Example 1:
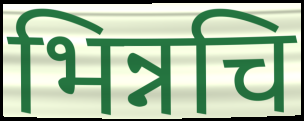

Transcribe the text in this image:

भिन्नचि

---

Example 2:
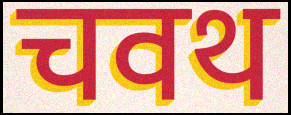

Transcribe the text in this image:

चवथ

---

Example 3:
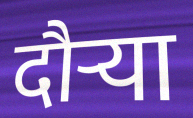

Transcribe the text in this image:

दौऱ्या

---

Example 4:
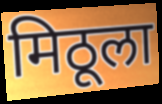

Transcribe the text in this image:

मिठूला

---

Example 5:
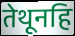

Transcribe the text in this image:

तेथूनहि